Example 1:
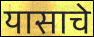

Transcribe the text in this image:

यासाचे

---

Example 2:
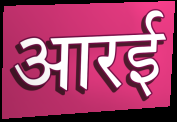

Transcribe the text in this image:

आरई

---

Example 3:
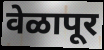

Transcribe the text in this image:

वेळापूर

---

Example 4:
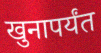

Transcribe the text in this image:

खुनापर्यंत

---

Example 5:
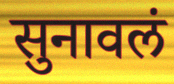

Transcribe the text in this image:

सुनावलं